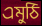
এমুঠি